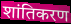
शांतिकरण